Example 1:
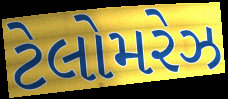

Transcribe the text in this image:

ટેલોમરેઝ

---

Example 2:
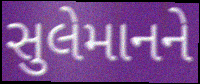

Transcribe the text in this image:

સુલેમાનને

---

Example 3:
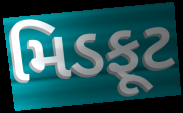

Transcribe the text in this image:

મિડફૂટ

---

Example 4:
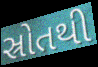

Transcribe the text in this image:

સ્રોતથી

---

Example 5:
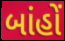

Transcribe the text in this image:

બાંહોં